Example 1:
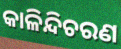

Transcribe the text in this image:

କାଳିନ୍ଦିଚରଣ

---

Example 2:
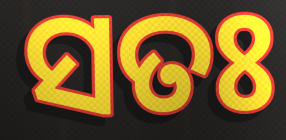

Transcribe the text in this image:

ସତଃ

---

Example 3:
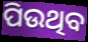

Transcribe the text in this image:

ପିଉଥିବ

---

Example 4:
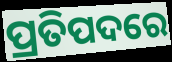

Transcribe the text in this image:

ପ୍ରତିପଦରେ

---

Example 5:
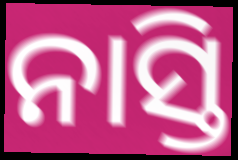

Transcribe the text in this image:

ନାସ୍ତି